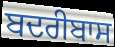
ਬਦਰੀਬਾਸ